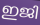
ഇജി